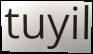
tuyil